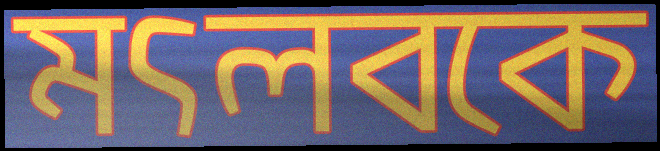
মৎলবকে